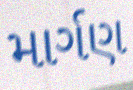
માર્ગણ